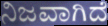
ನಿಜವಾಗಿದೆ